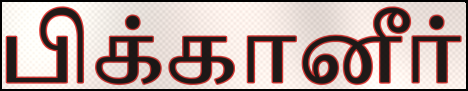
பிக்கானீர்